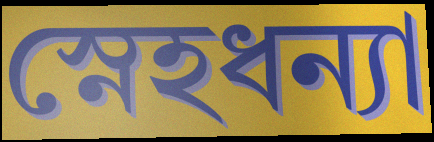
স্নেহধন্যা